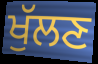
ਖੁੱਲਣ